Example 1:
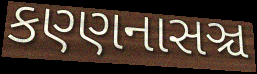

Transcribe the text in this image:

કણ્ણનાસઞ્ચ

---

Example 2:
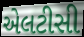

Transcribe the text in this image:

એલટીસી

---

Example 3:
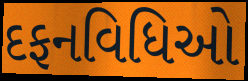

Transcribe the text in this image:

દફનવિધિઓ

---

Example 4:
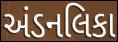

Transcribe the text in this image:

અંડનલિકા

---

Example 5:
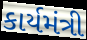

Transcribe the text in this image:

કાર્યમંત્રી